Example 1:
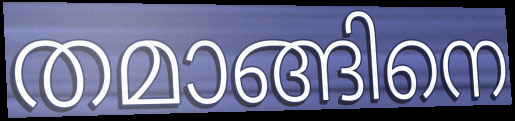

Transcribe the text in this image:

തമാങ്ങിനെ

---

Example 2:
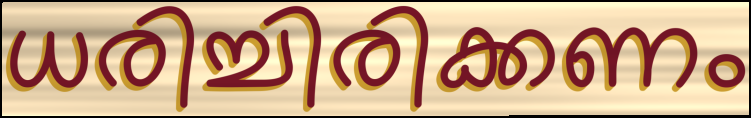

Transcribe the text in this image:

ധരിച്ചിരിക്കണം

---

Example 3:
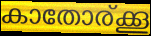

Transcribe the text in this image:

കാതോര്ക്കൂ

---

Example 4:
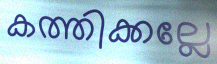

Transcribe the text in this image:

കത്തിക്കല്ലേ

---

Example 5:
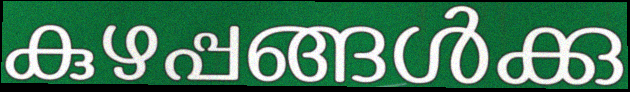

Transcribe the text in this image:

കുഴപ്പങ്ങൾക്കു